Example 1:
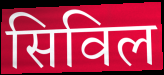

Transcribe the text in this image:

सिविल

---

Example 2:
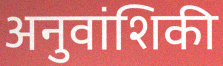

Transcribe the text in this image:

अनुवांशिकी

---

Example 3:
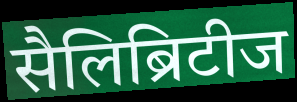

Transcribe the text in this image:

सैलिब्रिटीज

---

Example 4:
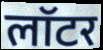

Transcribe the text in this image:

लॉटर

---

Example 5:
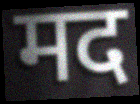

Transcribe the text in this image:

मद